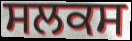
ਸਲਕਸ